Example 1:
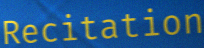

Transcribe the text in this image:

Recitation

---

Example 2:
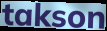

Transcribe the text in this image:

takson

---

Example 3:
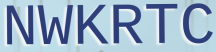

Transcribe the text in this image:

NWKRTC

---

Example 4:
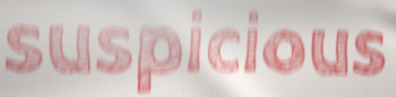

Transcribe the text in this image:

suspicious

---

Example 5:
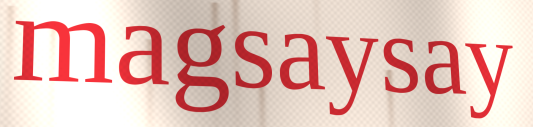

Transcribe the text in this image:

magsaysay